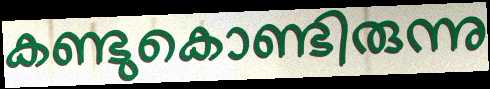
കണ്ടുകൊണ്ടിരുന്നു